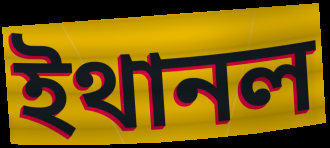
ইথানল